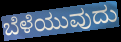
ಬೆಳೆಯುವುದು